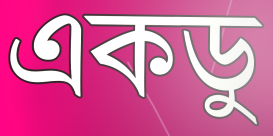
একডু